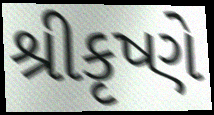
શ્રીકૃષ્ણે